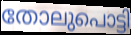
തോലുപൊട്ടി